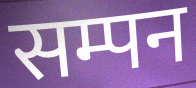
सम्पन